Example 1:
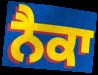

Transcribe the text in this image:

ਨੈਕਾ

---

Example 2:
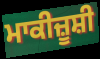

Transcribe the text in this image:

ਮਾਕੀਜ਼ੂਸ਼ੀ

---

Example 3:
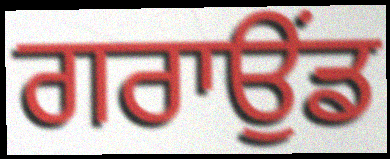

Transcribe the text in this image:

ਗਰਾਉਂਡ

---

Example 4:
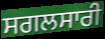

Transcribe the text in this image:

ਸਗਲਸਾਰੀ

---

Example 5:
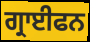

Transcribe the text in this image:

ਗ੍ਰਾਈਫਨ